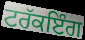
ਟਰੱਕਇੰਗ